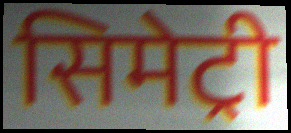
सिमेट्री